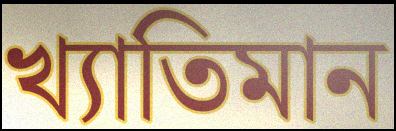
খ্যাতিমান